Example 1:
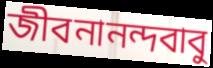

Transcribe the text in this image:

জীবনানন্দবাবু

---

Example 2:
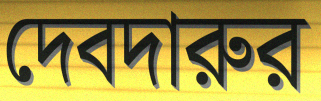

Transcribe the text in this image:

দেবদারুর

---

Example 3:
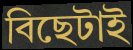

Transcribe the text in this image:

বিছেটাই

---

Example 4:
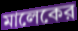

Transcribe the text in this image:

মালেকের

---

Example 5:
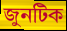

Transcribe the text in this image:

জুনটিক